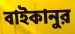
বাইকানুর